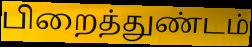
பிறைத்துண்டம்